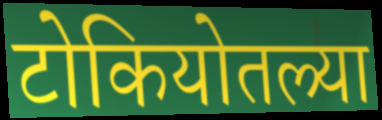
टोकियोतल्या